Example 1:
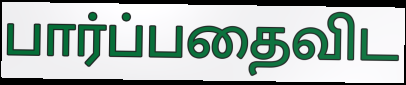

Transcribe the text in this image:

பார்ப்பதைவிட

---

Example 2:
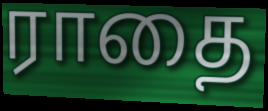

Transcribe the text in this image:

ராதை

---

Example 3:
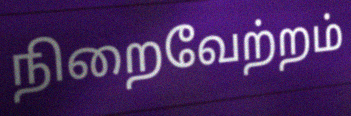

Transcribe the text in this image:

நிறைவேற்றம்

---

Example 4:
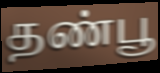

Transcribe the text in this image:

தண்பூ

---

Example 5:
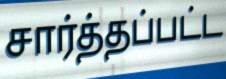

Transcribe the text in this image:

சார்த்தப்பட்ட